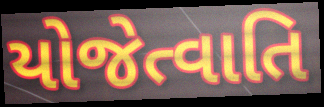
યોજેત્વાતિ